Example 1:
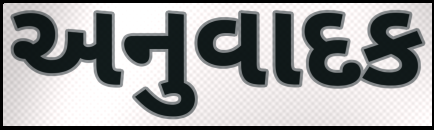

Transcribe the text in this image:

અનુવાદક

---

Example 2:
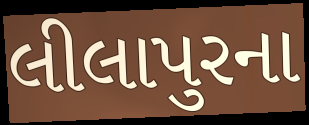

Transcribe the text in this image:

લીલાપુરના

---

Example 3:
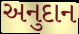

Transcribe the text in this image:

અનુદાન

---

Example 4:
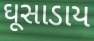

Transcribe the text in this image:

ઘૂસાડાય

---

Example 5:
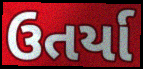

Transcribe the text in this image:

ઉતર્યા